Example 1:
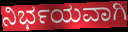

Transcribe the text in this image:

ನಿರ್ಭಯವಾಗಿ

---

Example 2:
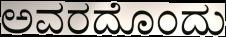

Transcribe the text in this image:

ಅವರದೊಂದು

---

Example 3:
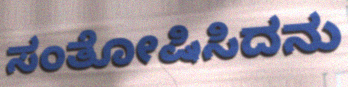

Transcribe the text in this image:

ಸಂತೋಷಿಸಿದನು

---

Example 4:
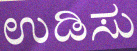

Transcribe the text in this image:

ಉಡಿಸು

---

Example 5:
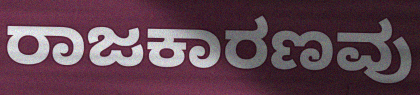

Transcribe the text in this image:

ರಾಜಕಾರಣವು